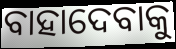
ବାହାଦେବାକୁ